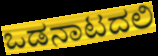
ಒಡನಾಟದಲಿ